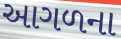
આગળના